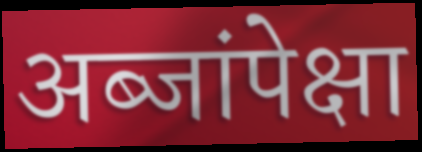
अब्जांपेक्षा